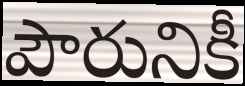
పౌరునికీ